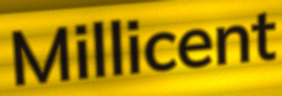
Millicent